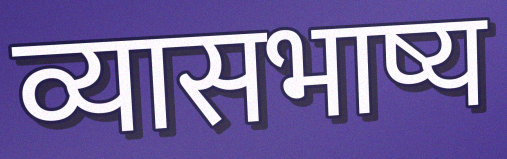
व्यासभाष्य